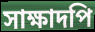
সাক্ষাদপি